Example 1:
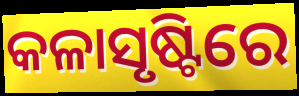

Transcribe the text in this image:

କଳାସୃଷ୍ଟିରେ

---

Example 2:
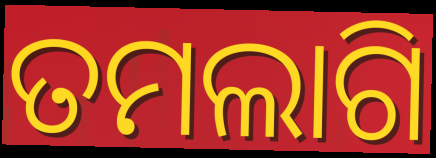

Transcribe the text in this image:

ତମଲାଗି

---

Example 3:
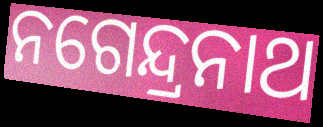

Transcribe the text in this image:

ନଗେନ୍ଦ୍ରନାଥ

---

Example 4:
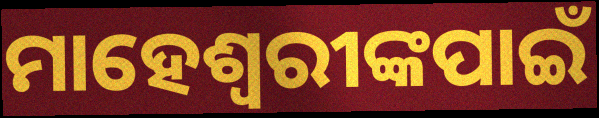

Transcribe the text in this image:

ମାହେଶ୍ୱରୀଙ୍କପାଇଁ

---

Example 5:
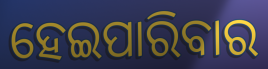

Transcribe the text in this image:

ହେଇପାରିବାର